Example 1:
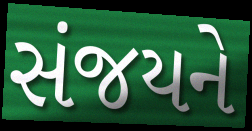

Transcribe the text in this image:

સંજયને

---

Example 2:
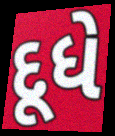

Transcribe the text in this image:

દૂધે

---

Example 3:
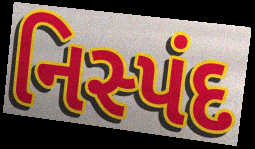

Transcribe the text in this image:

નિસ્પંદ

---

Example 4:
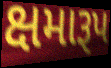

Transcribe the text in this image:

ક્ષમારૂપ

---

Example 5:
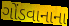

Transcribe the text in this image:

ગોંડવાનાના